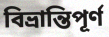
বিভ্রান্তিপূর্ণ